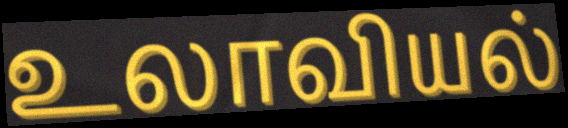
உலாவியல்